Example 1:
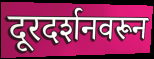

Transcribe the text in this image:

दूरदर्शनवरून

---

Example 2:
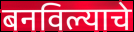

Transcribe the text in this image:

बनविल्याचे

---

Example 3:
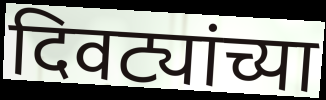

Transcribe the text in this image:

दिवट्यांच्या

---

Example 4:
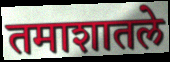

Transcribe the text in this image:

तमाशातले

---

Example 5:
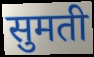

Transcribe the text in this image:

सुमती